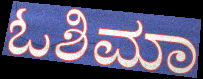
ಓಶಿಮಾ